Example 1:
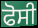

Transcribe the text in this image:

ਫੋਸੀ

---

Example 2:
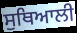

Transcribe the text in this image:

ਸੁਥਿਆਲੀ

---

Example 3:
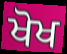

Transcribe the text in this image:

ਖੋਖ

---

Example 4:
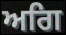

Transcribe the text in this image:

ਅਗਿ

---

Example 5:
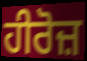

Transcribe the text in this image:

ਹੀਰੋਜ਼